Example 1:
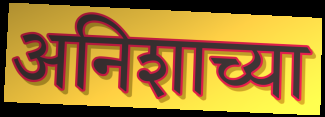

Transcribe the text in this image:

अनिशाच्या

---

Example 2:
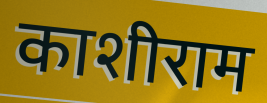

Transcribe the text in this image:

काशीराम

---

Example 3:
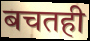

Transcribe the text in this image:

बचतही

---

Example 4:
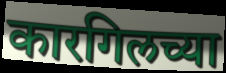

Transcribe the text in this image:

कारगिलच्या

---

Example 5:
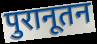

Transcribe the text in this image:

पुरानूतन